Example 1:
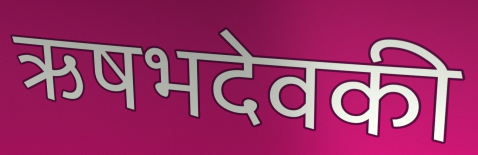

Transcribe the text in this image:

ऋषभदेवकी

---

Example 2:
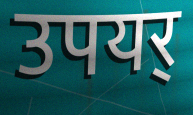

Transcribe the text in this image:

उपयर्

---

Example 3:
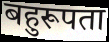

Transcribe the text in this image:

बहुरूपता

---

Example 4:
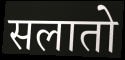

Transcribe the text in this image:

सलातो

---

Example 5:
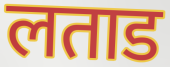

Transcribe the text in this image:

लताड